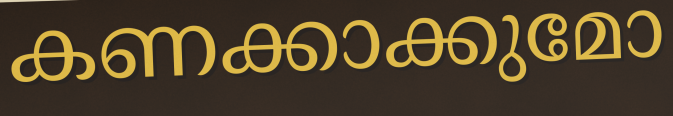
കണക്കാക്കുമോ